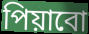
পিয়াবো